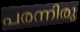
പരന്നിരു